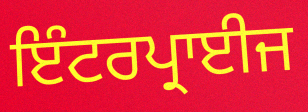
ਇੰਟਰਪ੍ਰਾਈਜ